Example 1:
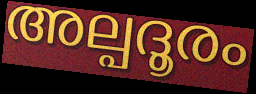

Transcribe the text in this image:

അല്പദൂരം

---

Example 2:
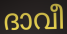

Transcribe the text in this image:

ദാവീ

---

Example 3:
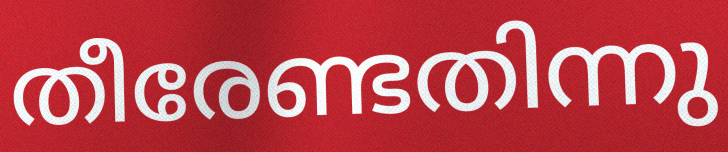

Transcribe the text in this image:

തീരേണ്ടതിന്നു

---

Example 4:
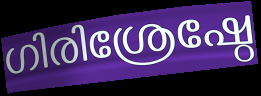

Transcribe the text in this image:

ഗിരിശ്രേഷ്ഠേ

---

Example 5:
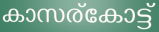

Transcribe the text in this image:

കാസര്കോട്ട്